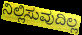
ನಿಲ್ಲಿಸುವುದಿಲ್ಲ